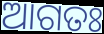
ଆଗତଃ